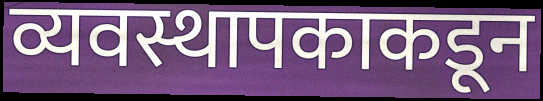
व्यवस्थापकाकडून